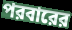
পরবারের